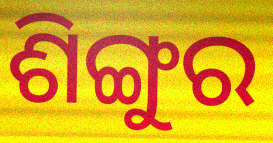
ଶିଙ୍ଗୁର